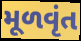
મૂળવૃંત